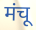
मंचू